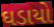
ઘડાયો